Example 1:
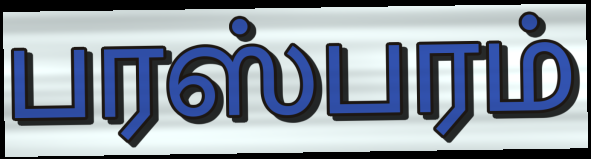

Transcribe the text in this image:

பரஸ்பரம்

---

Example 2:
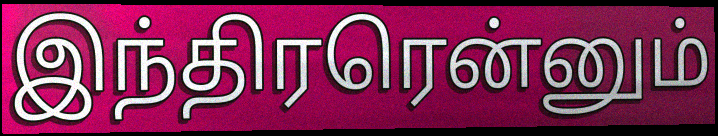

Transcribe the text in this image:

இந்திரரென்னும்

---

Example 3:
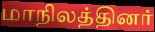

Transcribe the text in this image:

மாநிலத்தினர்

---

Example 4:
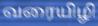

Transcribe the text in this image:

வரையிழி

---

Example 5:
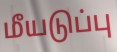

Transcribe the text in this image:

மீயடுப்பு